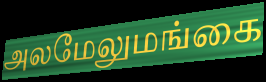
அலமேலுமங்கை